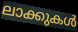
ലാക്കുകൾ